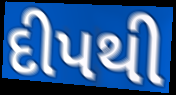
દીપથી